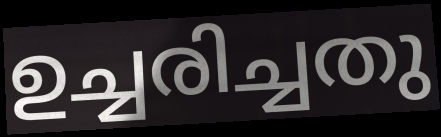
ഉച്ചരിച്ചതു